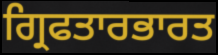
ਗ੍ਰਿਫਤਾਰਭਾਰਤ